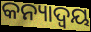
କନ୍ୟାଦ୍ୱୟ